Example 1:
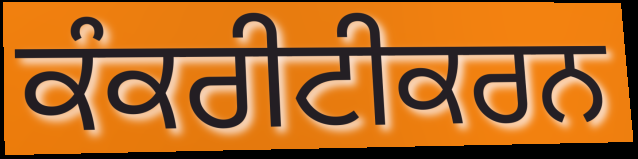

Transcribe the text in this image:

ਕੰਕਰੀਟੀਕਰਨ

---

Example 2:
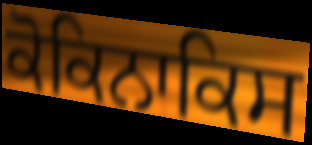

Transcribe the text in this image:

ਕੋਕਿਨਾਕਿਸ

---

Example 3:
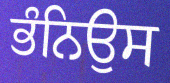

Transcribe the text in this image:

ਭੰਨਿਉਸ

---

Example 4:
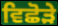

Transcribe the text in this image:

ਵਿਛੋੜੇ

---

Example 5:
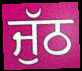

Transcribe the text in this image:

ਜੁੱਠ